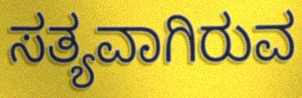
ಸತ್ಯವಾಗಿರುವ